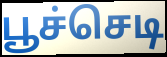
பூச்செடி